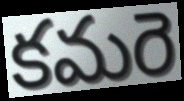
కమరె